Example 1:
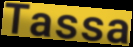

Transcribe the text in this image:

Tassa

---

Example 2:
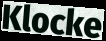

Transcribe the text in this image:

Klocke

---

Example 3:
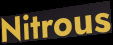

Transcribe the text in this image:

Nitrous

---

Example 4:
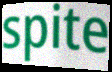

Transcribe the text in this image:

spite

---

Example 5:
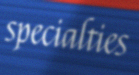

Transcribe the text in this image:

specialties